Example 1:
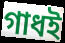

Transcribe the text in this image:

গাধই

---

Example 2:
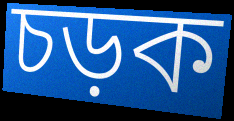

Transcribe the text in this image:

চড়ক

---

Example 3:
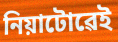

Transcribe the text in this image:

নিয়াটোৱেই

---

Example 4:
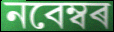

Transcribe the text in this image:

নবেম্বৰ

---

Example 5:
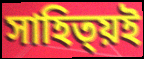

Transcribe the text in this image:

সাহিত্য়ই